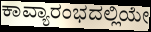
ಕಾವ್ಯಾರಂಭದಲ್ಲಿಯೇ